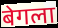
बेगला